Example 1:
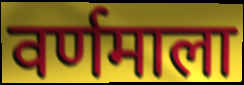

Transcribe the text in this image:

वर्णमाला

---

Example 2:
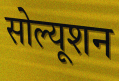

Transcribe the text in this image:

सोल्‍यूशन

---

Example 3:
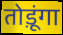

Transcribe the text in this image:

तोड़ूंगा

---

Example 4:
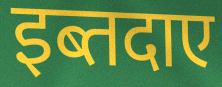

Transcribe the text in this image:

इब्तदाए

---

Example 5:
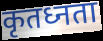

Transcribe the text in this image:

कृतध्नता